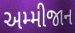
અમ્મીજાન